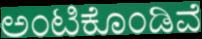
ಅಂಟಿಕೊಂಡಿವೆ